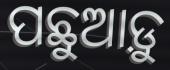
ପଛୁଆଡ଼ୁ